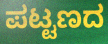
ಪಟ್ಟಣದ